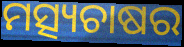
ମତ୍ସ୍ୟଚାଷର